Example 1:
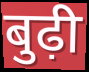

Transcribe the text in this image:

बुढ़ी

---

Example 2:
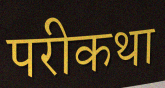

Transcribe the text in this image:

परीकथा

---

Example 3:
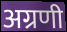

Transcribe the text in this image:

अग्रणी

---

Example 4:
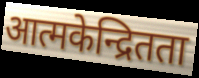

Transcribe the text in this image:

आत्मकेन्द्रितता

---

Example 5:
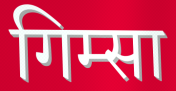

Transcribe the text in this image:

गिम्सा